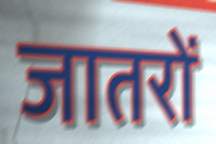
जातरों